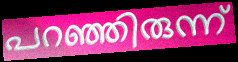
പറഞ്ഞിരുന്ന്